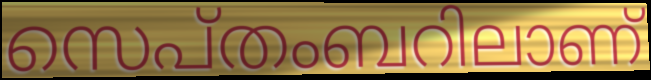
സെപ്തംബറിലാണ്